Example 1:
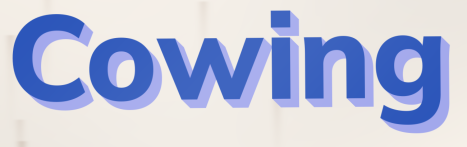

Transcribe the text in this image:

Cowing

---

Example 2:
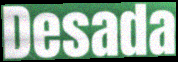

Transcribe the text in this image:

Desada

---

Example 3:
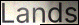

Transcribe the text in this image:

Lands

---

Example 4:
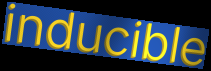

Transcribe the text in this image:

inducible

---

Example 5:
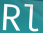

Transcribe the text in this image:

Rl